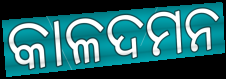
କାଳଦମନ